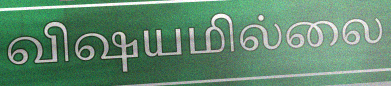
விஷயமில்லை